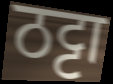
ठट्टा